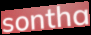
sontha